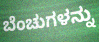
ಬೆಂಚುಗಳನ್ನು